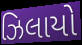
ઝિલાયો